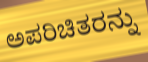
ಅಪರಿಚಿತರನ್ನು